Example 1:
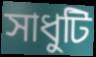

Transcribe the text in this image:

সাধুটি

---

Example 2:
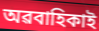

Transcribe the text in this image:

অৱবাহিকাই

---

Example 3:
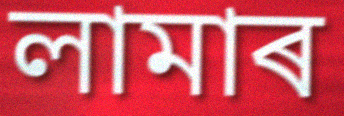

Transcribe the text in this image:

লামাৰ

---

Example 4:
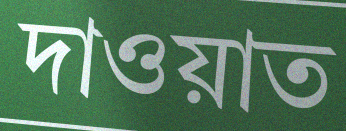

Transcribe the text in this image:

দাওয়াত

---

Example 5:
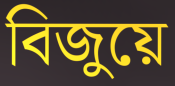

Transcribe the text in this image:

বিজুয়ে